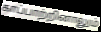
காப்பாற்றினாலும்